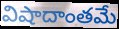
విషాదాంతమే